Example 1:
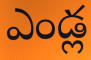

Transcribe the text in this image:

ఎండ్ల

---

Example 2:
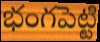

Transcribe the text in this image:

భంగపెట్టి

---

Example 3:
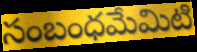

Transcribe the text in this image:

సంబంధమేమిటి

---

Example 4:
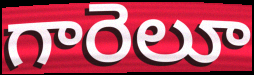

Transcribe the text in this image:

గారెలూ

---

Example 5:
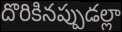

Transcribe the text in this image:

దొరికినప్పుడల్లా